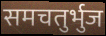
समचतुर्भुज